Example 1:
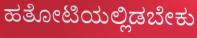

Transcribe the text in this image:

ಹತೋಟಿಯಲ್ಲಿಡಬೇಕು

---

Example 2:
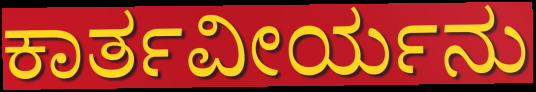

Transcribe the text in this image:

ಕಾರ್ತವೀರ್ಯನು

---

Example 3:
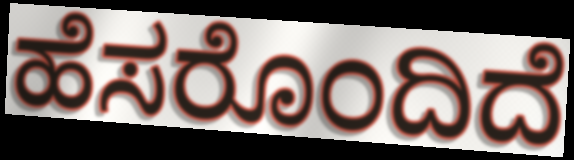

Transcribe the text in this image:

ಹೆಸರೊಂದಿದೆ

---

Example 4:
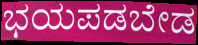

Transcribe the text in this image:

ಭಯಪಡಬೇಡ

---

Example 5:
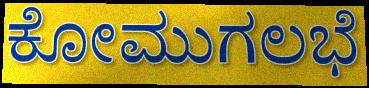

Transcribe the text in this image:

ಕೋಮುಗಲಭೆ